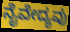
ನೈವೇದ್ಯವು